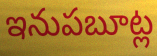
ఇనుపబూట్ల